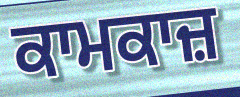
ਕਾਮਕਾਜ਼